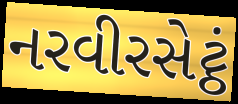
નરવીરસેટ્ઠં